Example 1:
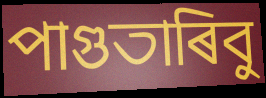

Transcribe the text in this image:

পাগুতাৰিবু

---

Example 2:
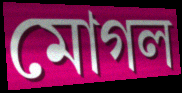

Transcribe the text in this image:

মোগল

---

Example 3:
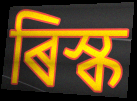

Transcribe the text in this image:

ৰিস্ক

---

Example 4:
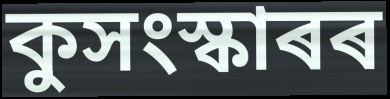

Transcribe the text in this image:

কুসংস্কাৰৰ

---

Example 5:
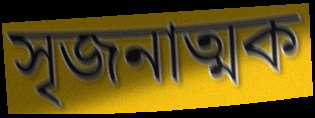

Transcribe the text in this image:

সৃজনাত্মক